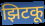
झिटकू